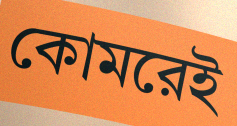
কোমরেই